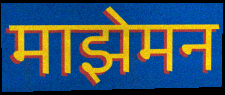
माझेमन